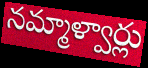
నమ్మాళ్వార్లు